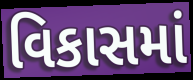
વિકાસમાં